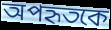
অপহৃতকে